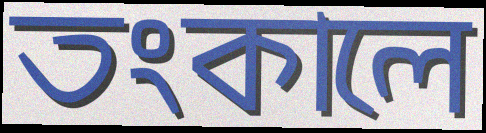
তংকালে